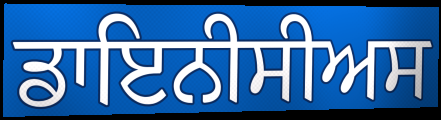
ਡਾਇਨੀਸੀਅਸ